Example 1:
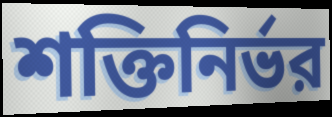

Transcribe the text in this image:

শক্তিনির্ভর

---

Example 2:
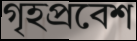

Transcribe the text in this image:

গৃহপ্রবেশ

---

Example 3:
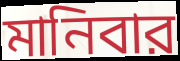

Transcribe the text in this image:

মানিবার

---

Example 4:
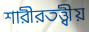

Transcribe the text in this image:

শারীরতত্ত্বীয়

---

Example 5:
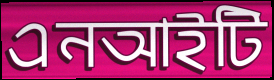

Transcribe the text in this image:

এনআইটি